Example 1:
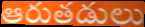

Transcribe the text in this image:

ఆరుతడులు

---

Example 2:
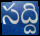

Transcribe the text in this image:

సద్ది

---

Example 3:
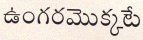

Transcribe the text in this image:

ఉంగరమొక్కటే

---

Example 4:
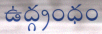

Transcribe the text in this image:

ఉద్గ్రంధం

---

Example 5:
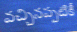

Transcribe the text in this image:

వచ్చినప్పటికీ